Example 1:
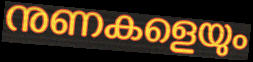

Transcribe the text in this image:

നുണകളെയും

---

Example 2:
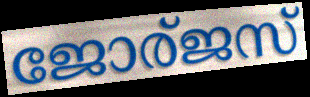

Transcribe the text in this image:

ജോര്ജസ്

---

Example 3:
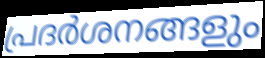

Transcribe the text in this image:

പ്രദർശനങ്ങളും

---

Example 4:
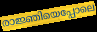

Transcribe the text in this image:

രാജ്ഞിയെപ്പോലെ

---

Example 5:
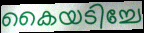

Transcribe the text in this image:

കൈയടിച്ചേ